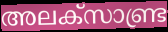
അലക്സാണ്ട്ര